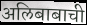
अलिबाबाची